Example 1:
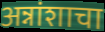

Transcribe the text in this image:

अन्नांशाचा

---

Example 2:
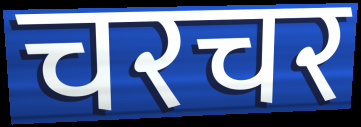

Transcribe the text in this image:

चरचर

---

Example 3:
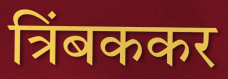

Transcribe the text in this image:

त्रिंबककर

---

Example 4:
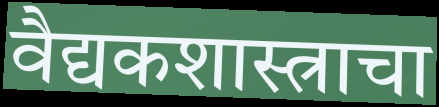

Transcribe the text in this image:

वैद्यकशास्त्राचा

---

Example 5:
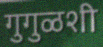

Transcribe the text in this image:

गुगुळशी